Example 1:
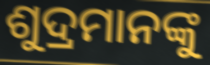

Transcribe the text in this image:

ଶୁଦ୍ରମାନଙ୍କୁ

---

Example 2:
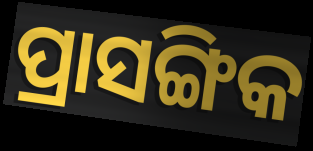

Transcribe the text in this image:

ପ୍ରାସଙ୍ଗିକ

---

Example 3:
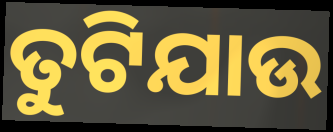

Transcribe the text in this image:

ତୁଟିଯାଉ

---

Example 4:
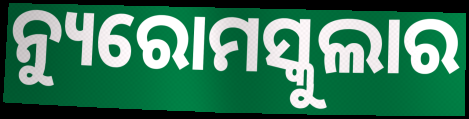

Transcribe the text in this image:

ନ୍ୟୁରୋମସ୍କୁଲାର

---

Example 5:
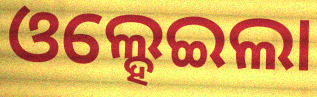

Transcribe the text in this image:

ଓଲ୍ହେଇଲା